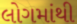
લોગમાંથી